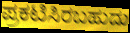
ಪ್ರಕಟಿಸಿರಬಹುದು